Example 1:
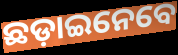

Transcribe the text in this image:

ଛଡ଼ାଇନେବେ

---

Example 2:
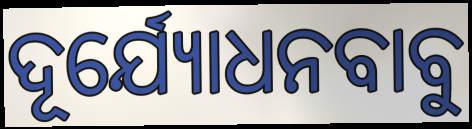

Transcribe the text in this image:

ଦୂର୍ଯ୍ୟୋଧନବାବୁ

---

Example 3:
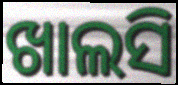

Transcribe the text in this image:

ଖାଲସି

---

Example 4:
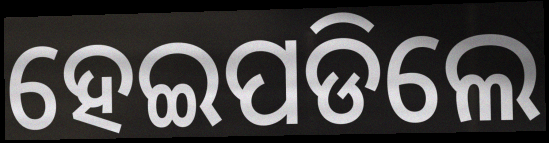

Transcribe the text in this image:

ହେଇପଡିଲେ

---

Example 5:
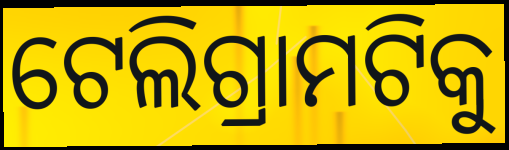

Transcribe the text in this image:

ଟେଲିଗ୍ରାମଟିକୁ